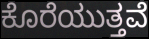
ಕೊರೆಯುತ್ತವೆ